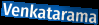
Venkatarama